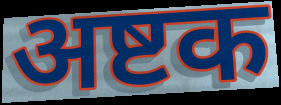
अष्टक